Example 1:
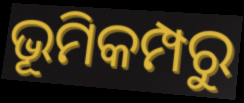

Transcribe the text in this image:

ଭୂମିକମ୍ପରୁ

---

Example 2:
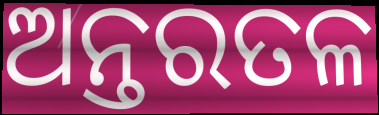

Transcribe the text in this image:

ଅନ୍ତରତଳ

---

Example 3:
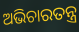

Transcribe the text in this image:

ଅଭିଚାରତନ୍ତ୍ର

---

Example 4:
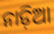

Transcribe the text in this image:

ନାଡ଼ିଆ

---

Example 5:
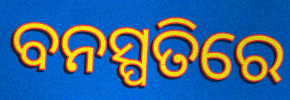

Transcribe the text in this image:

ବନସ୍ପତିରେ